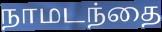
நாமடந்தை